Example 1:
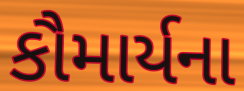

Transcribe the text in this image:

કૌમાર્યના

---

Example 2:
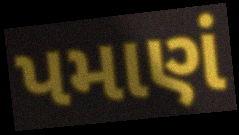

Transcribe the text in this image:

પમાણં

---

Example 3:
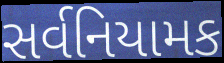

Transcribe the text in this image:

સર્વનિયામક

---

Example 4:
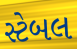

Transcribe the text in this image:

સ્ટેબલ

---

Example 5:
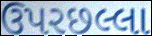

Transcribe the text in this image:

ઉપરછલ્લા